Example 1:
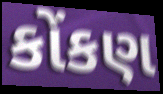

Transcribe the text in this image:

કોંકણ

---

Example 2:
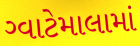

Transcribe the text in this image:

ગ્વાટેમાલામાં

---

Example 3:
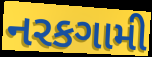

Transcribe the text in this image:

નરકગામી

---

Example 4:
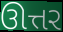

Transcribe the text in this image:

ઊત્તર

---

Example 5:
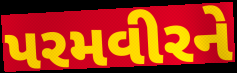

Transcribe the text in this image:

પરમવીરને